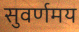
सुवर्णमय